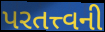
પરતત્ત્વની